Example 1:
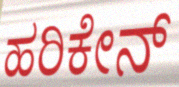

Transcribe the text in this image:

ಹರಿಕೇನ್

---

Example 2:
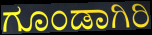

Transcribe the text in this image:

ಗೂಂಡಾಗಿರಿ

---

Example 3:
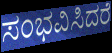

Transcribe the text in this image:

ಸಂಭವಿಸಿದರೆ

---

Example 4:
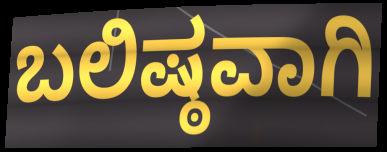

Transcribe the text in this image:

ಬಲಿಷ್ಠವಾಗಿ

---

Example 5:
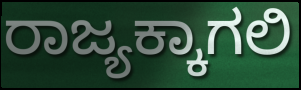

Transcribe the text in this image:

ರಾಜ್ಯಕ್ಕಾಗಲಿ